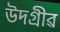
উদগ্ৰীৱ